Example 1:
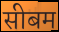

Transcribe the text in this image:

सीबम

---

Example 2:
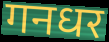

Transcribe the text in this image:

गनधर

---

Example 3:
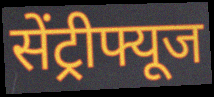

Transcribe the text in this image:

सेंट्रीफ्यूज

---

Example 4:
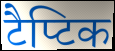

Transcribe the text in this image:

टैप्टिक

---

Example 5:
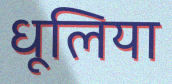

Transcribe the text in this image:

धूलिया